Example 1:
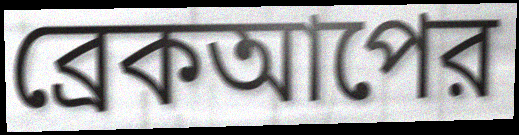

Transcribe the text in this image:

ব্রেকআপের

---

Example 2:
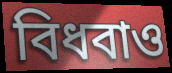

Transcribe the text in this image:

বিধবাও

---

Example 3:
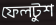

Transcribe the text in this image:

ফেলটুশ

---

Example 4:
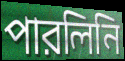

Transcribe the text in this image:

পারলিনি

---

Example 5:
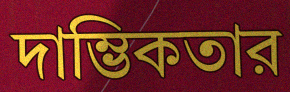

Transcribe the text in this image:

দাম্ভিকতার